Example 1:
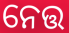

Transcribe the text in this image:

ନେତ୍ତ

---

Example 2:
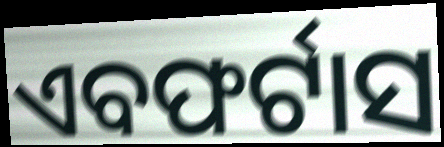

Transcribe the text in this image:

ଏବଫର୍ଟାସ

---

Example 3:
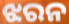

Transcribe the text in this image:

ଝରନ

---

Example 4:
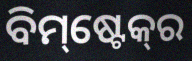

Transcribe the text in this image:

ବିମ୍‌ଷ୍ଟେକ୍‌ର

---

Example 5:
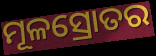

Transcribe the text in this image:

ମୂଳସ୍ରୋତର